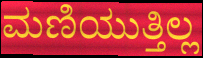
ಮಣಿಯುತ್ತಿಲ್ಲ